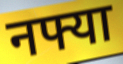
नफ्या